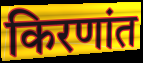
किरणांत